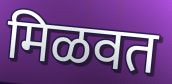
मिळवत